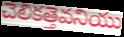
చెలికత్తెవనియు